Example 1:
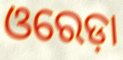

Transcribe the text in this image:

ଓରେଡ଼ା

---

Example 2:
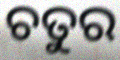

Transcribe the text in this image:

ଚତୁର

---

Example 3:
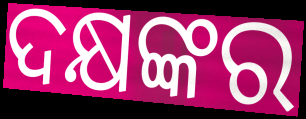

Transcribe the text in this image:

ଦକ୍ଷଙ୍କର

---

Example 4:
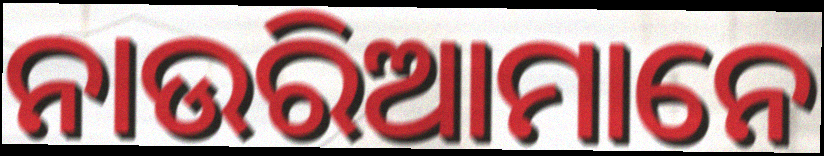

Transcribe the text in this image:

ନାଉରିଆମାନେ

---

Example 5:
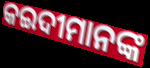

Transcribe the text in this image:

କଇଦୀମାନଙ୍କ